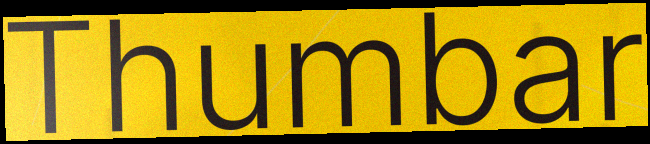
Thumbar